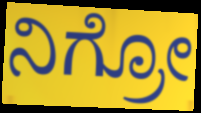
ನಿಗ್ರೋ